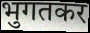
भुगतकर